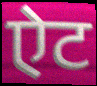
ऐट